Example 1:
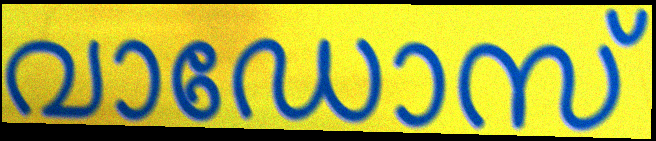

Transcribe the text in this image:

വാഡോസ്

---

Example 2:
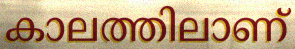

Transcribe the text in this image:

കാലത്തിലാണ്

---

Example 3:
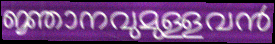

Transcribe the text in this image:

ജ്ഞാനവുമുള്ളവൻ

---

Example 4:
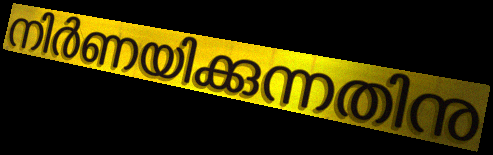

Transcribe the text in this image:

നിർണയിക്കുന്നതിനു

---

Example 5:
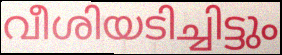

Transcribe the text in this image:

വീശിയടിച്ചിട്ടും